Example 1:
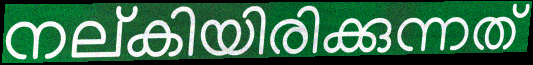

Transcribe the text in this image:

നല്കിയിരിക്കുന്നത്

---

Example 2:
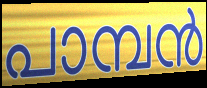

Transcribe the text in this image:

പാമ്പൻ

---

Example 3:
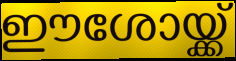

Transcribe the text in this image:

ഈശോയ്ക്ക്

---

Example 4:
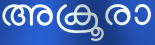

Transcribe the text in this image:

അക്രൂരാ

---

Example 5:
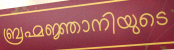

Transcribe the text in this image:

ബ്രഹ്മജ്ഞാനിയുടെ